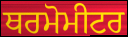
ਥਰਮੋਮੀਟਰ